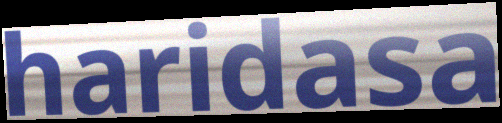
haridasa